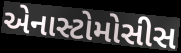
એનાસ્ટોમોસીસ